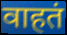
वाहतं